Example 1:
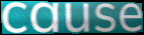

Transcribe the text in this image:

cause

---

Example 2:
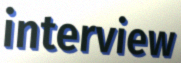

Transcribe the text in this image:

interview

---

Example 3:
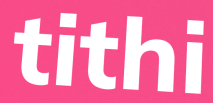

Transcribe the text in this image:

tithi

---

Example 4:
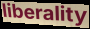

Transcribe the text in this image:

liberality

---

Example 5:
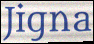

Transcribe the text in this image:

Jigna